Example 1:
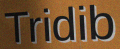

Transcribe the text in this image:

Tridib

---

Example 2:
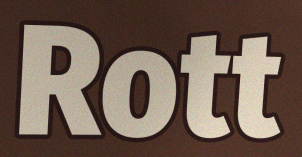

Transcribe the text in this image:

Rott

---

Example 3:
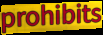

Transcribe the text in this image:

prohibits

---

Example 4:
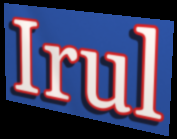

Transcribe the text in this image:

Irul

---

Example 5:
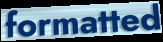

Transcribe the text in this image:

formatted